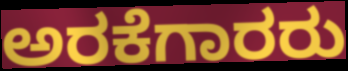
ಅರಕೆಗಾರರು